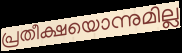
പ്രതീക്ഷയൊന്നുമില്ല